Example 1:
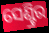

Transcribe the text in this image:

ସେଣ୍ଟ୍ରିର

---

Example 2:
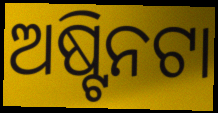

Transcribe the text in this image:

ଅଷ୍ଟିନଟା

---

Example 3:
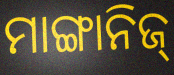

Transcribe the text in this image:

ମାଙ୍ଗାନିଜ୍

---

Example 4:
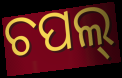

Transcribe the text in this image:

ଚପଲ୍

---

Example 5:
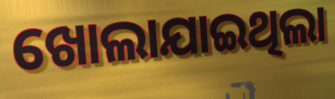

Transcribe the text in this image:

ଖୋଲାଯାଇଥିଲା